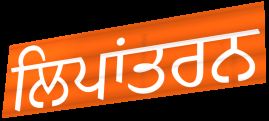
ਲਿਪਾਂਤਰਨ